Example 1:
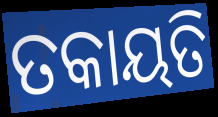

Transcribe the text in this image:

ତକାୟତି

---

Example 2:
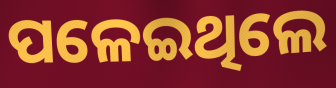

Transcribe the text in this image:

ପଳେଇଥିଲେ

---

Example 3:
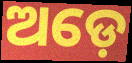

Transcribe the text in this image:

ଅଡ଼େ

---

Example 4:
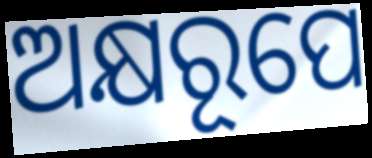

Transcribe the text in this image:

ଅକ୍ଷରୂପେ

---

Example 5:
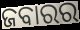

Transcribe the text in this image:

ଜବାରର